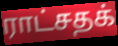
ராட்சதக்